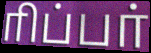
ரிப்பர்